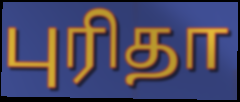
புரிதா